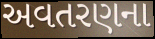
અવતરણના